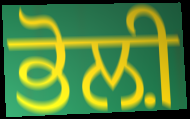
ਭੋਲ਼ੀ